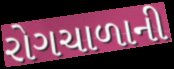
રોગચાળાની